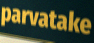
parvatake